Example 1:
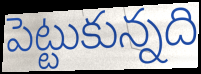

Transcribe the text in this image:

పెట్టుకున్నది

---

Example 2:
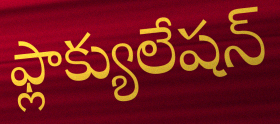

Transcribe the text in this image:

ఫ్లాక్యులేషన్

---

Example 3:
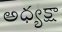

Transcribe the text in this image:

అధ్యక్షా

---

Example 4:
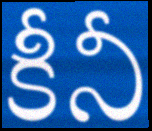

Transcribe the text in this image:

కీనీ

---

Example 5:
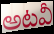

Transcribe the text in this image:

అటవీ